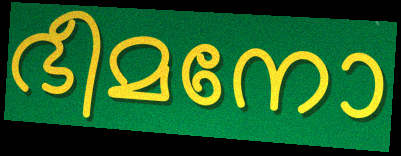
ഭീമനോ